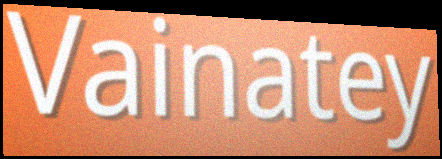
Vainatey